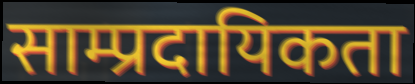
साम्प्रदायिकता